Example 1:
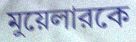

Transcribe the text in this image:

মুয়েলারকে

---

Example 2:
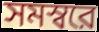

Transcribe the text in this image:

সমস্বরে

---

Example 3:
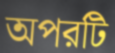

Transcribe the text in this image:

অপরটি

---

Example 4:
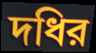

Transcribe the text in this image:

দধির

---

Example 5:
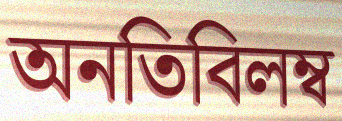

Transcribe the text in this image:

অনতিবিলম্ব